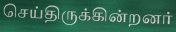
செய்திருக்கின்றனர்